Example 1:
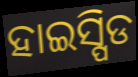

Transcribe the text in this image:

ହାଇସ୍ପିଡ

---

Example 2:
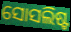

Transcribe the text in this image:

ସୋସଲିଷ୍ଟ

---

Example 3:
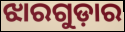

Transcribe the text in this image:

ଝାରଗୁଡ଼ାର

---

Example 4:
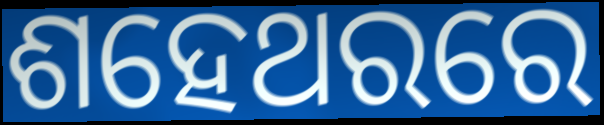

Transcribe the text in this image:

ଶହେଥରରେ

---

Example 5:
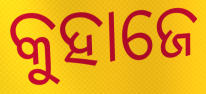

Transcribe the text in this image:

କୁହାଜେ